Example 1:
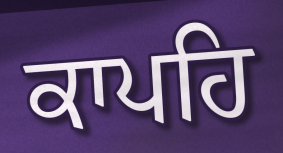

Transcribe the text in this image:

ਕਾਪਹਿ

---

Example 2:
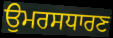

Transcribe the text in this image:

ਉਮਰਸਧਾਰਣ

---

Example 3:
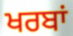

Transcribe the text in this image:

ਖਰਬਾਂ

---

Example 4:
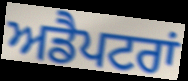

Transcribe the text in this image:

ਅਡੈਪਟਰਾਂ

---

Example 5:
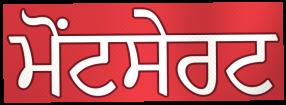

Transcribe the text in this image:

ਮੋਂਟਸੇਰਟ